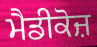
ਮੈਡੀਕੋਜ਼